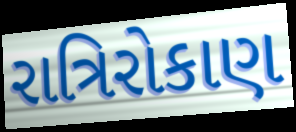
રાત્રિરોકાણ